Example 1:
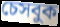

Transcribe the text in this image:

চেসবুক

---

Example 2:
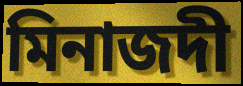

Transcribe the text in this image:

মিনাজদী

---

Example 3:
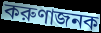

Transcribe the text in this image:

করুণাজনক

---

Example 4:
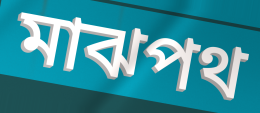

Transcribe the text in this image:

মাঝপথ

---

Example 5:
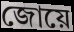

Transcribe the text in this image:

জোয়ে